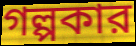
গল্পকার